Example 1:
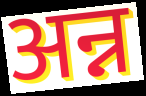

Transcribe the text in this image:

अन्न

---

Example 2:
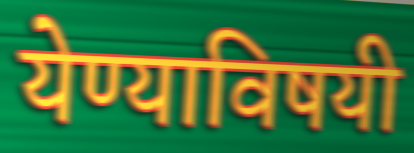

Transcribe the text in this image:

येण्याविषयी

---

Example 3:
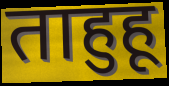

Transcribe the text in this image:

ताहुहू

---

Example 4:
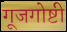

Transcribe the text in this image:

गूजगोष्टी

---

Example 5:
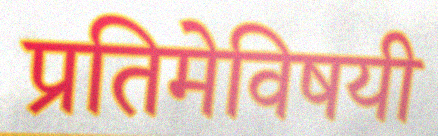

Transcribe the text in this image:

प्रतिमेविषयी